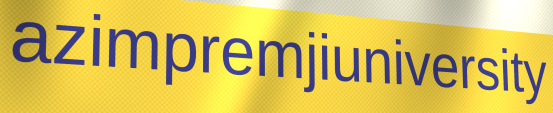
azimpremjiuniversity